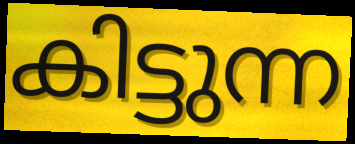
കിട്ടുന്ന